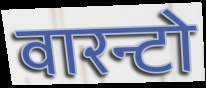
वारन्टो